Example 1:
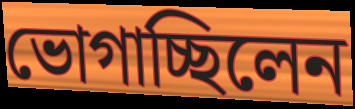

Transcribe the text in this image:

ভোগাচ্ছিলেন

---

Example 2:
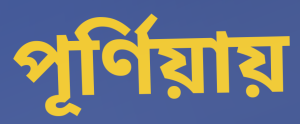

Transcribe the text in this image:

পূর্ণিয়ায়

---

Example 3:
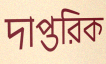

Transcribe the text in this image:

দাপ্তরিক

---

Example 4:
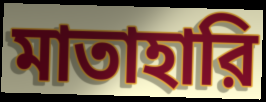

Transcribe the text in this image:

মাতাহারি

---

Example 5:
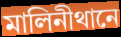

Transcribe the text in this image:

মালিনীথানে